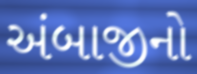
અંબાજીનો